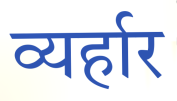
व्यर्हार